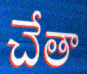
చేతా